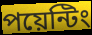
পয়েন্টিং